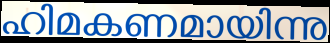
ഹിമകണമായിന്നു